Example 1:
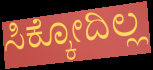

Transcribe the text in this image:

ಸಿಕ್ಕೋದಿಲ್ಲ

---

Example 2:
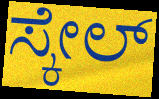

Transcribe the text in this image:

ಸ್ಕೇಲ್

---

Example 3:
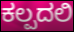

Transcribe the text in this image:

ಕಲ್ಪದಲಿ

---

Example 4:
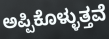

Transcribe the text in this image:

ಅಪ್ಪಿಕೊಳ್ಳುತ್ತವೆ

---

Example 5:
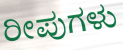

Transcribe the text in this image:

ರೀಪುಗಳು